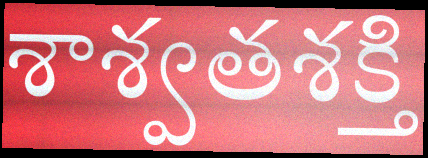
శాశ్వతశక్తి